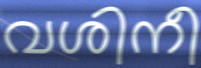
വശിനീ